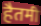
हैतमी